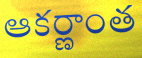
ఆకర్ణాంత